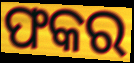
ଫକର